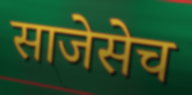
साजेसेच